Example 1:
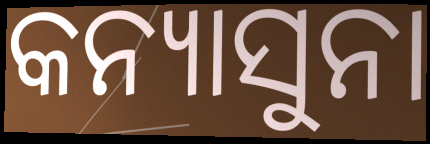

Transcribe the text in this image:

କନ୍ୟାସୁନା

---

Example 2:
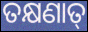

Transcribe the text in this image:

ତକ୍ଷଣାତ୍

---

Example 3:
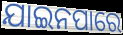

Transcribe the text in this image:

ଯାଇନପାରେ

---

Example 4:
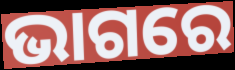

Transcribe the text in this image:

ଭାଗରେ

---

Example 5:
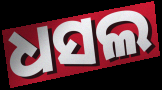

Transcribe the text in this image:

ଧସଲ